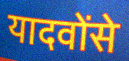
यादवोंसे